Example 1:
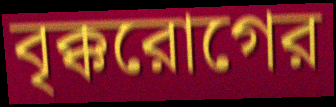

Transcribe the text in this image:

বৃক্করোগের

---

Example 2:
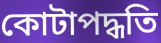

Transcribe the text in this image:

কোটাপদ্ধতি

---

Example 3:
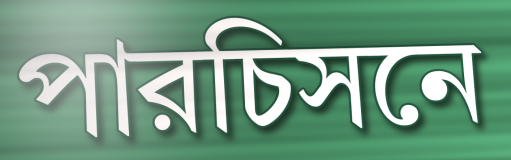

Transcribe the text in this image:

পারচিসনে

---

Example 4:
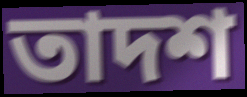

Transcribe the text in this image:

তাদশ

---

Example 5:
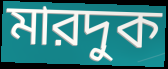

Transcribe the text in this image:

মারদুক